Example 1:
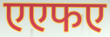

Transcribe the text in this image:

एएफए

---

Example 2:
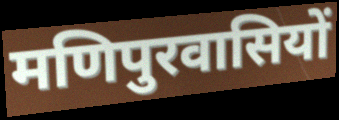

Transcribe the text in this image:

मणिपुरवासियों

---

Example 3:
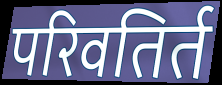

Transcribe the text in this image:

परिवतिर्त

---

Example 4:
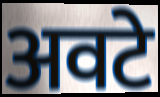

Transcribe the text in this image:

अवटे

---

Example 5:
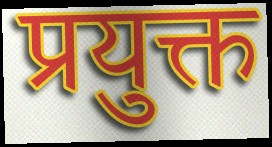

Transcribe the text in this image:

प्रयुक्त